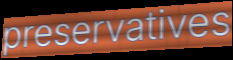
preservatives